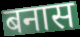
बनास